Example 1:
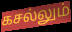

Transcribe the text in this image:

கசல்லும்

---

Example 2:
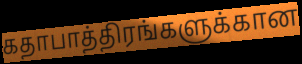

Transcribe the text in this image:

கதாபாத்திரங்களுக்கான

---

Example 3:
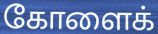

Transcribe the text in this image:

கோளைக்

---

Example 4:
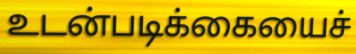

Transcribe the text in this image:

உடன்படிக்கையைச்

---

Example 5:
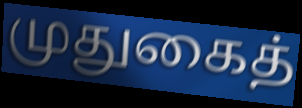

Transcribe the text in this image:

முதுகைத்